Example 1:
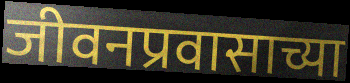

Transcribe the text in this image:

जीवनप्रवासाच्या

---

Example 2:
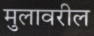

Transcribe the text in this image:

मुलावरील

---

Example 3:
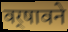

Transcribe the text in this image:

वर्षावने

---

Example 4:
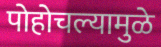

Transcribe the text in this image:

पोहोचल्यामुळे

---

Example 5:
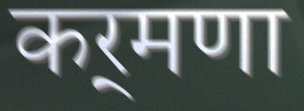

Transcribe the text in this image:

कर्मणा